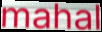
mahal